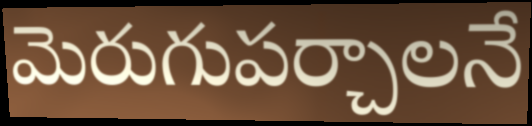
మెరుగుపర్చాలనే